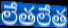
లేతలేత